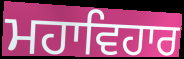
ਮਹਾਵਿਹਾਰ